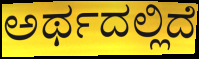
ಅರ್ಥದಲ್ಲಿದೆ